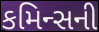
કમિન્સની